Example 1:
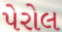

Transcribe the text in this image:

પેરોલ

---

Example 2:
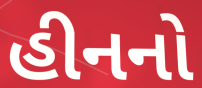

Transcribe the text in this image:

હીનનો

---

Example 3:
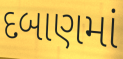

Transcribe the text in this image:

દબાણમાં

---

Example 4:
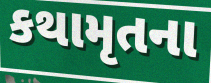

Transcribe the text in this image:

કથામૃતના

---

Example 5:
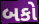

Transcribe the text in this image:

બકો